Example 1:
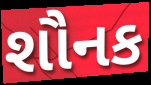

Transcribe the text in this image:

શૌનક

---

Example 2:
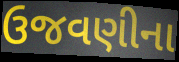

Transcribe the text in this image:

ઉજવણીના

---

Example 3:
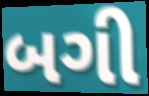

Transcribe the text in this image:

બગી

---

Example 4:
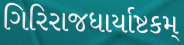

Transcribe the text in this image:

ગિરિરાજધાર્યાષ્ટકમ્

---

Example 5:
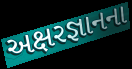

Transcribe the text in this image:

અક્ષરજ્ઞાનના